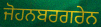
ਜੋਹਨਬਰਗਰੇਨ